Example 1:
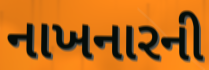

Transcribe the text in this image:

નાખનારની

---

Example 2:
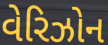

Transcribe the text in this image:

વેરિઝોન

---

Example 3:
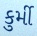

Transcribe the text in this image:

કુર્મી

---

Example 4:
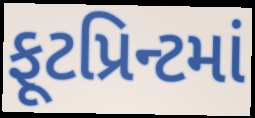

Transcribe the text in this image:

ફૂટપ્રિન્ટમાં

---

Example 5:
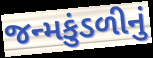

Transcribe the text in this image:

જન્મકુંડળીનું